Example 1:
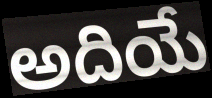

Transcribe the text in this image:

అదియే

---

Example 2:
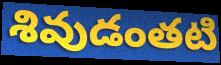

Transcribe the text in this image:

శివుడంతటి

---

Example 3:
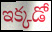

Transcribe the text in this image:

ఇక్కడో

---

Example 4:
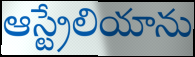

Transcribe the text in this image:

ఆస్ట్రేలియాను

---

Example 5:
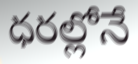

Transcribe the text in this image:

ధరల్లోనే